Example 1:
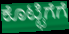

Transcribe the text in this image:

ಕೊಟ್ಟಿಗೆಗೆ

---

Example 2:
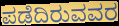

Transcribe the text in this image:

ಪಡೆದಿರುವವರ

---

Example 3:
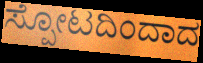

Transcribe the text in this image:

ಸ್ಪೋಟದಿಂದಾದ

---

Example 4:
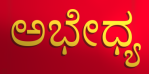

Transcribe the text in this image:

ಅಭೇಧ್ಯ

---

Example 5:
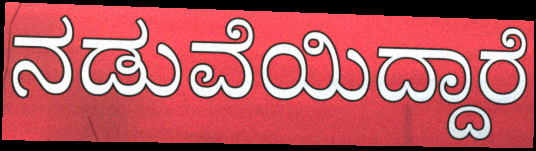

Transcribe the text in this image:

ನಡುವೆಯಿದ್ದಾರೆ